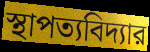
স্থাপত্যবিদ্যার